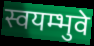
स्वयम्भुवे